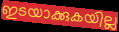
ഇടയാക്കുകയില്ല